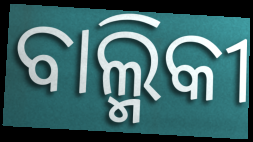
ବାଲ୍ମିକୀ